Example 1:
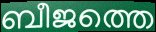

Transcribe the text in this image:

ബീജത്തെ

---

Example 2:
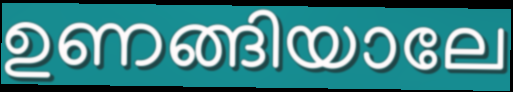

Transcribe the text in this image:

ഉണങ്ങിയാലേ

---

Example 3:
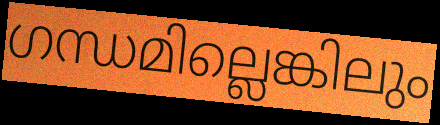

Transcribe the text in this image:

ഗന്ധമില്ലെങ്കിലും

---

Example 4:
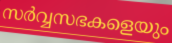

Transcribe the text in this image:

സർവ്വസഭകളെയും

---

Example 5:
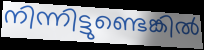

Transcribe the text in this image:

നിന്നിട്ടുണ്ടെങ്കിൽ